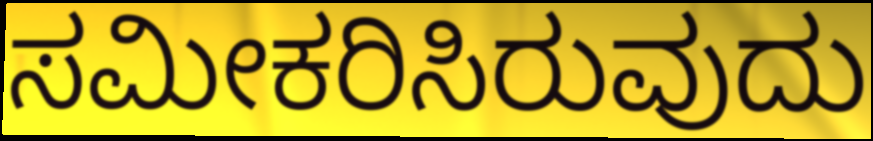
ಸಮೀಕರಿಸಿರುವುದು